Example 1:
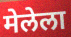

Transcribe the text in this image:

मेलेला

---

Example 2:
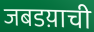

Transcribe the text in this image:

जबडय़ाची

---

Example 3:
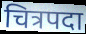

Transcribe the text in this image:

चित्रपदा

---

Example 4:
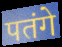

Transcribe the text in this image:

पतंगे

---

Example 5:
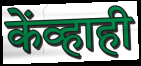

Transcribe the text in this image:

केंव्हाही